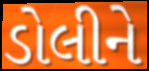
ડોલીને